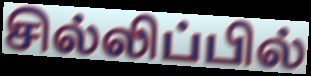
சில்லிப்பில்